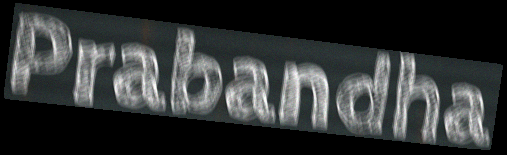
Prabandha